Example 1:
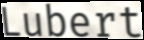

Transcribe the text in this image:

Lubert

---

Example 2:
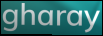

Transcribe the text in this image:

gharay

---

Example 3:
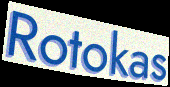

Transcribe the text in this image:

Rotokas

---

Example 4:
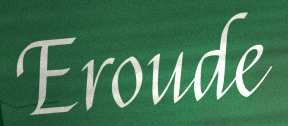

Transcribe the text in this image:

Eroude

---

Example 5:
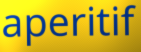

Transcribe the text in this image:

aperitif